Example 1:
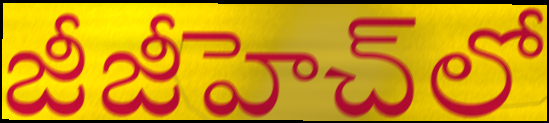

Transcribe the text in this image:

జీజీహెచ్‌లో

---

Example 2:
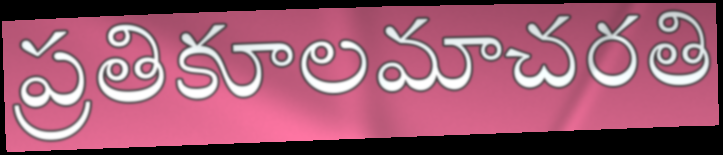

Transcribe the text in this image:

ప్రతికూలమాచరతి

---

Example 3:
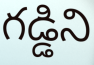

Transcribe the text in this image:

గడ్డిని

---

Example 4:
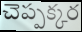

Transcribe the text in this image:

చెప్పక్కర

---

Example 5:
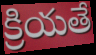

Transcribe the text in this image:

క్రియతే